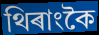
থিৰাংকৈ